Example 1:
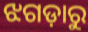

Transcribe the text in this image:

ଝଗଡ଼ାରୁ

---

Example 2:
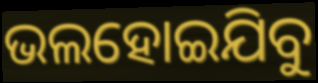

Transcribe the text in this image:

ଭଲହୋଇଯିବୁ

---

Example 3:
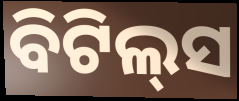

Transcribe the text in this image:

ବିଟିଲ୍‌ସ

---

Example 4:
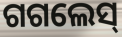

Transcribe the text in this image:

ଗଗଲେସ୍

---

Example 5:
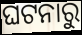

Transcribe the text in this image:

ଘଟନାରୁ